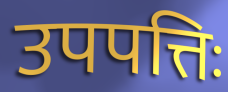
उपपत्तिः